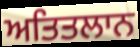
ਅਤਿਤਲਾਨ